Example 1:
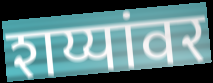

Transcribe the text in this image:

शय्यांवर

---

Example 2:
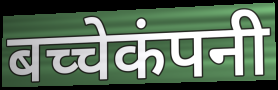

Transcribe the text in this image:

बच्चेकंपनी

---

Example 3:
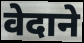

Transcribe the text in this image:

वेदाने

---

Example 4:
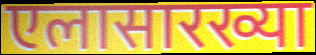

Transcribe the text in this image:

एलासारख्या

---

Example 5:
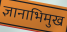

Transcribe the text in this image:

ज्ञानाभिमुख